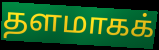
தளமாகக்